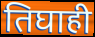
तिघाही